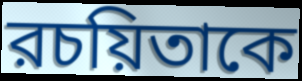
রচয়িতাকে